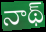
నాథ్